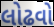
લોઢવો